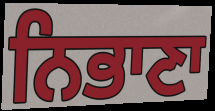
ਨਿਭਾਣਾ